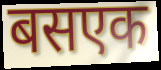
बसएक